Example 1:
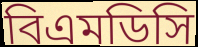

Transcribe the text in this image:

বিএমডিসি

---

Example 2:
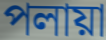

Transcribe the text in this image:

পলায়া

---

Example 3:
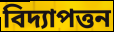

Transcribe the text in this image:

বিদ্যাপত্তন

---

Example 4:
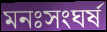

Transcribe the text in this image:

মনঃসংঘর্ষ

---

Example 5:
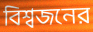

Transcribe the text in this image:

বিশ্বজনের